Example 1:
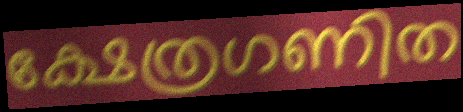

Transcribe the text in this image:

ക്ഷേത്രഗണിത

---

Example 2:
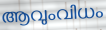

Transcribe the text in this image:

ആവുംവിധം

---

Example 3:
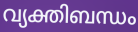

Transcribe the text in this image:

വ്യക്തിബന്ധം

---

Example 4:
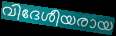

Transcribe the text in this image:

വിദേശീയരായ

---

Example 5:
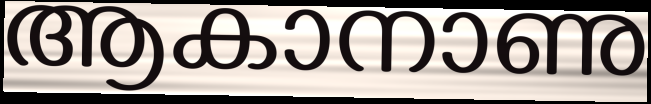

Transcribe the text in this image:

ആകാനാണു